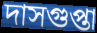
দাসগুপ্তা